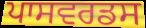
ਪਾਸਵਰਡਸ